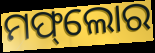
ମଫ୍‌ଲୋର